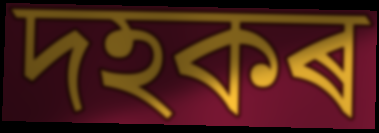
দহকৰ